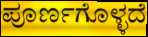
ಪೂರ್ಣಗೊಳ್ಳದೆ